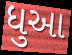
ધુઆ